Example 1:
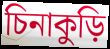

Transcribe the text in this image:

চিনাকুড়ি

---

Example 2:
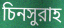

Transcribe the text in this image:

চিনসুরাহ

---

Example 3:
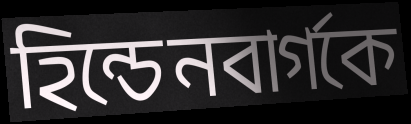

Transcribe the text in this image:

হিন্ডেনবার্গকে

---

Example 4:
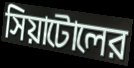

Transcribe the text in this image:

সিয়াটোলের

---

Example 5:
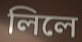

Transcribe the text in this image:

লিলে